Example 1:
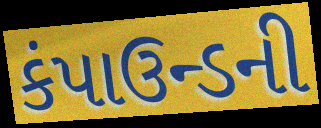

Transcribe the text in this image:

કંપાઉન્ડની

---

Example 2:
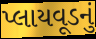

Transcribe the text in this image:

પ્લાયવૂડનું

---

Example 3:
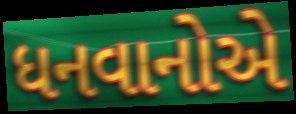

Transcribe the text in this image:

ધનવાનોએ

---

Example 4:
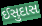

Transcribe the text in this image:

ઈસુદાસ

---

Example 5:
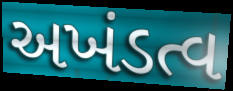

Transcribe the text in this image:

અખંડત્વ